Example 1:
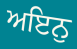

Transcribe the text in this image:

ਅਇਨੁ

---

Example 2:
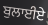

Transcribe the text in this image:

ਬੁਲਾਈਏ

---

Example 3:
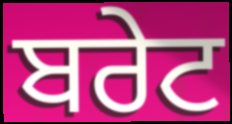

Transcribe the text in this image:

ਬਰੇਟ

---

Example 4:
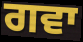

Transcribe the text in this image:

ਗਵਾ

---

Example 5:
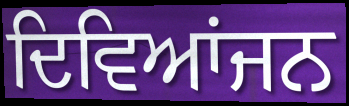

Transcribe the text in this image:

ਦਿਵਿਆਂਜਨ